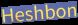
Heshbon